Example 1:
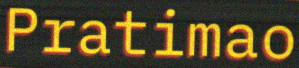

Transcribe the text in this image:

Pratimao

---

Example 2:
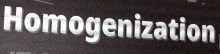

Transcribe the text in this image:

Homogenization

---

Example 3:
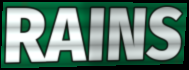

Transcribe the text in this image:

RAINS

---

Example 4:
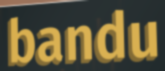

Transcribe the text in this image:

bandu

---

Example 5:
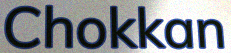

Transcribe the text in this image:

Chokkan